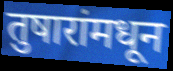
तुषारांमधून